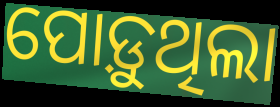
ପୋଡ଼ୁଥିଲା